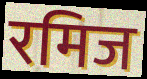
रमिज